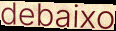
debaixo